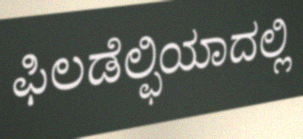
ಫಿಲಡೆಲ್ಫಿಯಾದಲ್ಲಿ